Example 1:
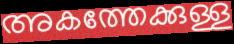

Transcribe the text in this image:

അകത്തേക്കുള്ള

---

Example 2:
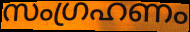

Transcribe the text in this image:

സംഗ്രഹണം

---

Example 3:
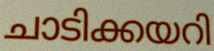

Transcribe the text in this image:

ചാടിക്കയറി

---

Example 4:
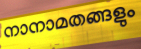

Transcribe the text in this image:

നാനാമതങ്ങളും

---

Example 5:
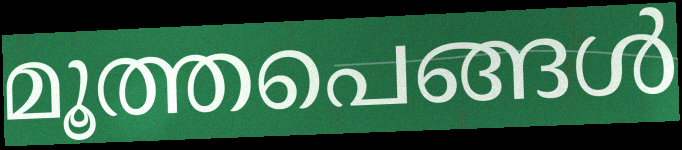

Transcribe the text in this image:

മൂത്തപെങ്ങൾ